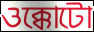
ওক্কোটো